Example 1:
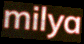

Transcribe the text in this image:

milya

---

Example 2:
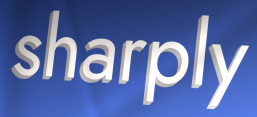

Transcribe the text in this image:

sharply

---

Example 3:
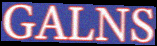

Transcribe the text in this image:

GALNS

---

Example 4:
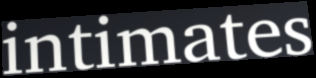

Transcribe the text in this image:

intimates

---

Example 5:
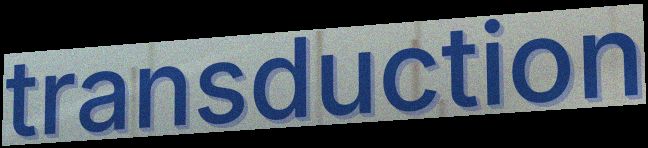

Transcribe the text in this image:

transduction